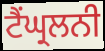
ਟੈਂਘ੍ਰਲਨੀ